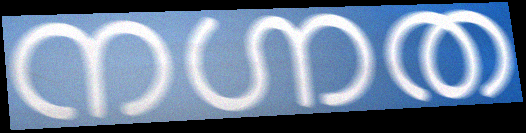
നഗ്നത